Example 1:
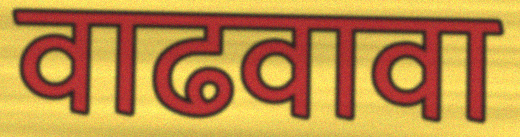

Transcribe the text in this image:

वाढवावा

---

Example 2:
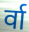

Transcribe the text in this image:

र्वा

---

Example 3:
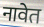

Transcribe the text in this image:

नावेत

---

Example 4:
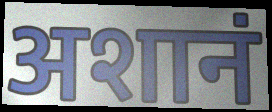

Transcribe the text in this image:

अशानं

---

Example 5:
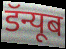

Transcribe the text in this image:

डॅन्यूब